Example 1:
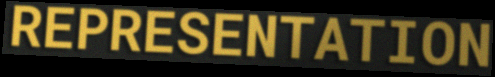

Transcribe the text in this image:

REPRESENTATION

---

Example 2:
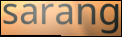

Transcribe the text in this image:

sarang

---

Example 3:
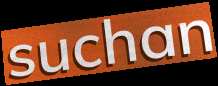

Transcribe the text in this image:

suchan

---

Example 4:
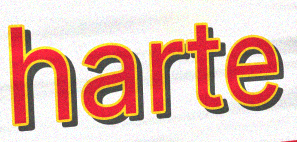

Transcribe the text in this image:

harte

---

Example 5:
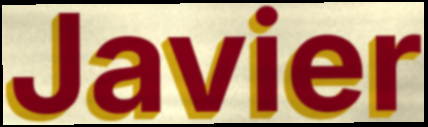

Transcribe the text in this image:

Javier